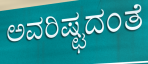
ಅವರಿಷ್ಟದಂತೆ